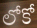
లోకో